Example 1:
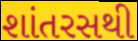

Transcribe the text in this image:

શાંતરસથી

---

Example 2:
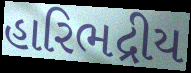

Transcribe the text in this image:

હારિભદ્રીય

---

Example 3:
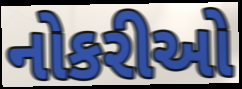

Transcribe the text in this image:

નોકરીઓ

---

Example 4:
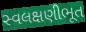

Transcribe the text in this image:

સ્વલક્ષણીભૂત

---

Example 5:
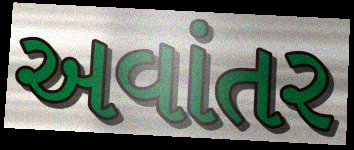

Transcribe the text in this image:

અવાંતર